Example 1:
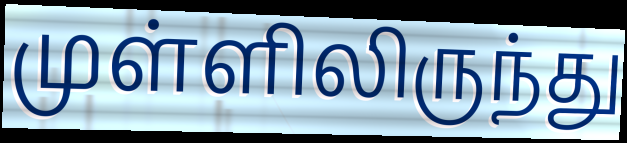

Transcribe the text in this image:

முள்ளிலிருந்து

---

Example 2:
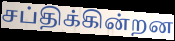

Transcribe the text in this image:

சப்திக்கின்றன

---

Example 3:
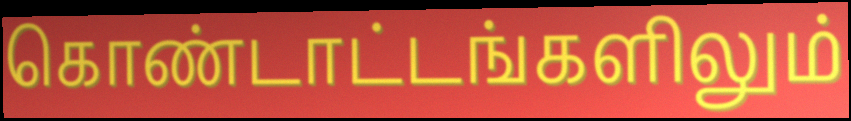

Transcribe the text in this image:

கொண்டாட்டங்களிலும்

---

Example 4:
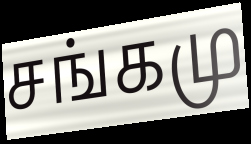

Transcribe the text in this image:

சங்கமு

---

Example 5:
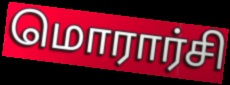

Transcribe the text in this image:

மொரார்சி